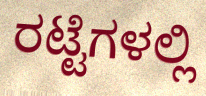
ರಟ್ಟೆಗಳಲ್ಲಿ